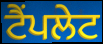
ਟੈਂਪਲੇਟ